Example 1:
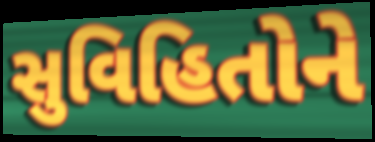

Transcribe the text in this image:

સુવિહિતોને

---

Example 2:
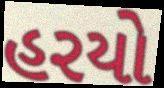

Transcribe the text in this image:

હરયો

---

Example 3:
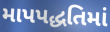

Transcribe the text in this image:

માપપદ્ધતિમાં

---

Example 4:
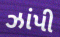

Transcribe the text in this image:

ઝાંપી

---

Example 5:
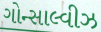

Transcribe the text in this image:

ગોન્સાલ્વીઝ